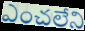
ఎంచలేని